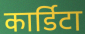
कार्डिटा